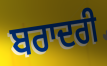
ਬਰਾਦਰੀ